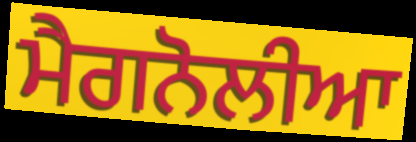
ਮੈਗਨੋਲੀਆ